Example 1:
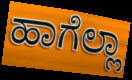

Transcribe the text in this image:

ಹಾಗೆಲ್ಲಾ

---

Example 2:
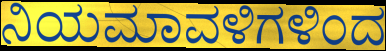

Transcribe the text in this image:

ನಿಯಮಾವಳಿಗಳಿಂದ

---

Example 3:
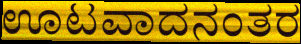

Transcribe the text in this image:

ಊಟವಾದನಂತರ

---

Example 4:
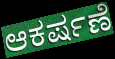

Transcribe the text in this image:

ಆಕರ್ಷಣೆ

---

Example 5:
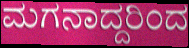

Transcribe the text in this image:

ಮಗನಾದ್ದರಿಂದ